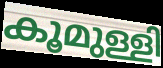
കൂമുള്ളി